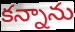
కన్నాను